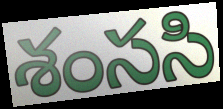
శంససి